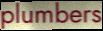
plumbers